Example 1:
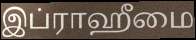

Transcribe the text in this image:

இப்ராஹீமை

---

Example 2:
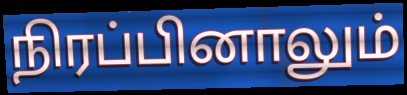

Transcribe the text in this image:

நிரப்பினாலும்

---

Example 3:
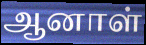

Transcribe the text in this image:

ஆனாள்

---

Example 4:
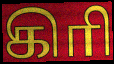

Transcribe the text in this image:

கிரி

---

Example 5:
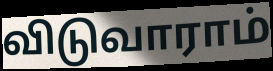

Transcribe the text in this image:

விடுவாராம்